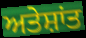
ਅਤੇਸ਼ਾਂਤ